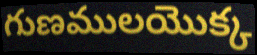
గుణములయొక్క